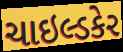
ચાઇલ્ડકેર